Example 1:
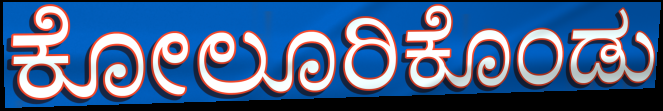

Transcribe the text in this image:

ಕೋಲೂರಿಕೊಂಡು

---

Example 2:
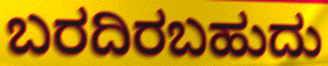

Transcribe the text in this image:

ಬರದಿರಬಹುದು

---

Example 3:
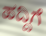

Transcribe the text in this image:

ಹದ್ದಿಗೆ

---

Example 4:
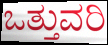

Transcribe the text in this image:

ಒತ್ತುವರಿ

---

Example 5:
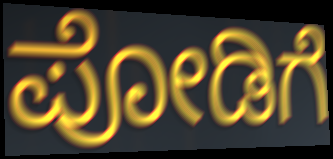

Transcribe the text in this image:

ಪೋಡಿಗೆ